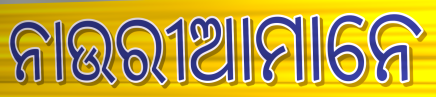
ନାଉରୀଆମାନେ